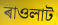
ৰাওলাট